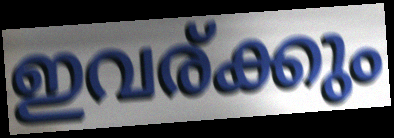
ഇവര്ക്കും